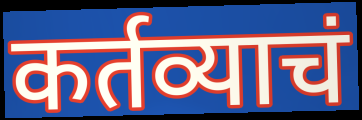
कर्तव्याचं